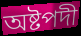
অষ্টপদী